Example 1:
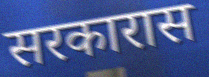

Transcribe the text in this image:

सरकारास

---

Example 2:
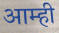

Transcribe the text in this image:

आम्‍ही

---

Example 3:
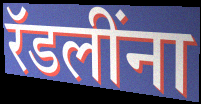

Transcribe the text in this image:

रॅडलींना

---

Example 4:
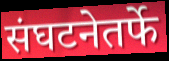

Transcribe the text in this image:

संघटनेतर्फे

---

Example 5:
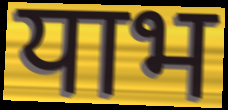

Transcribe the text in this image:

याभ